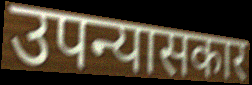
उपन्यासकार